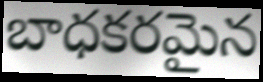
బాధకరమైన